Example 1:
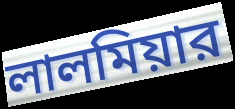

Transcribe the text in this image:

লালমিয়ার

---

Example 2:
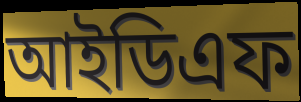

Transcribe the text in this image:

আইডিএফ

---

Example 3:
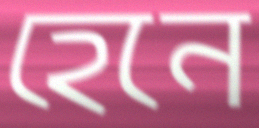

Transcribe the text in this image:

হেনে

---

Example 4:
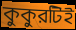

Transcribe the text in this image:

কুকুরটিই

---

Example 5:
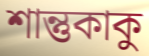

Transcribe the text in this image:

শান্তুকাকু